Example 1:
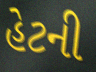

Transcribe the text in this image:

હેટની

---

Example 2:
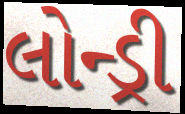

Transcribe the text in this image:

લોન્ડ્રી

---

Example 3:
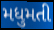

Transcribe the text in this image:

મધુમતી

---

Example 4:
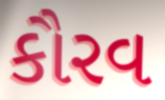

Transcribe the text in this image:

કૌરવ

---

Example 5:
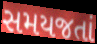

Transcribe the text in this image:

સમયજતાં